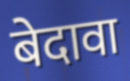
बेदावा